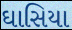
ઘાસિયા